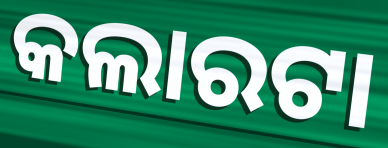
କଲାରଟା